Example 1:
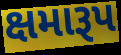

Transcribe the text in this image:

ક્ષમારૂપ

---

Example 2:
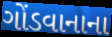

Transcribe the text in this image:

ગોંડવાનાના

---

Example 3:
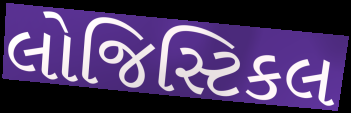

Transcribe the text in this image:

લોજિસ્ટિકલ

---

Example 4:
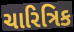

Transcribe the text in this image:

ચારિત્રિક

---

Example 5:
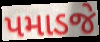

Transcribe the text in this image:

પમાડજે